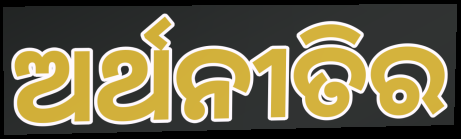
ଅର୍ଥନୀତିର